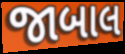
જાબાલ